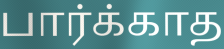
பார்க்காத